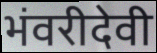
भंवरीदेवी